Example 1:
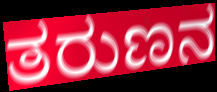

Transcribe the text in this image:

ತರುಣನ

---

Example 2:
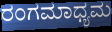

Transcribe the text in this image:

ರಂಗಮಾಧ್ಯಮ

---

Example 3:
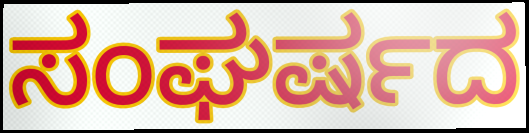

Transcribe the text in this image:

ಸಂಘರ್ಷದ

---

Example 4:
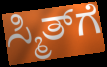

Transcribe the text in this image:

ಸ್ಮಿತ್‌ಗೆ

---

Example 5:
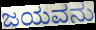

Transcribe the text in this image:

ಜಯವನು